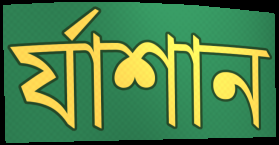
র্যাশান